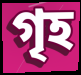
গৃহ